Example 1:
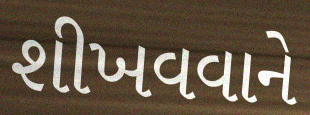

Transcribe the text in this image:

શીખવવાને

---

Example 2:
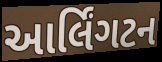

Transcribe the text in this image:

આર્લિંગટન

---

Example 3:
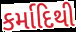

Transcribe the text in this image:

કર્માદિથી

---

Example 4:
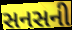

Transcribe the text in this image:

સનસની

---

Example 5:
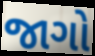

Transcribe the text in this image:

જાગો